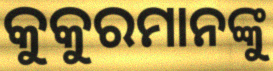
କୁକୁରମାନଙ୍କୁ